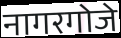
नागरगोजे